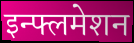
इन्फ्लमेशन